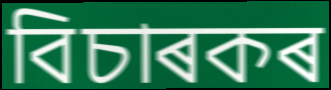
বিচাৰকৰ